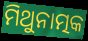
ମିଥୁନାତ୍ମକ